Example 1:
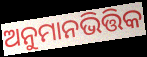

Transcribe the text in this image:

ଅନୁମାନଭିତ୍ତିକ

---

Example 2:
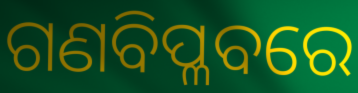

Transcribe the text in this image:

ଗଣବିପ୍ଳବରେ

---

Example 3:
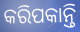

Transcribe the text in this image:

କରିପକାନ୍ତି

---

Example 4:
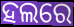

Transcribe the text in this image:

ହଲରେ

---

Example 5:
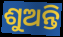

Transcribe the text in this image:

ଶୁଅନ୍ତି